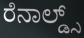
ರೆನಾಲ್ಡ್ಸ್